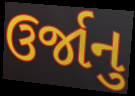
ઉર્જાનુ